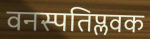
वनस्पतिप्लवक